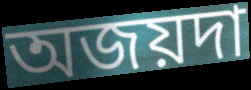
অজয়দা